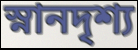
স্নানদৃশ্য